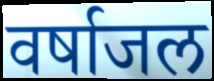
वर्षाजल